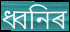
ধ্বনিৰ